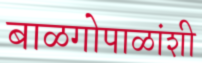
बाळगोपाळांशी